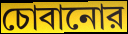
চোবানোর